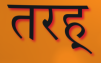
तरह्